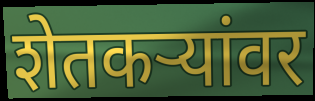
शेतकर्‍यांवर